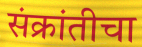
संक्रांतीचा